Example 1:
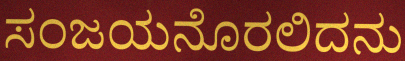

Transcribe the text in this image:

ಸಂಜಯನೊರಲಿದನು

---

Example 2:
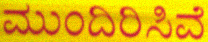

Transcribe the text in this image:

ಮುಂದಿರಿಸಿವೆ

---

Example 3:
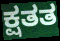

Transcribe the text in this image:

ಕ್ಷತತ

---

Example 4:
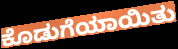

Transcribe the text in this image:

ಕೊಡುಗೆಯಾಯಿತು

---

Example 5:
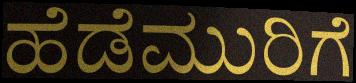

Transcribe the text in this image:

ಹೆಡೆಮುರಿಗೆ